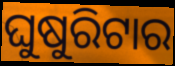
ଘୁଷୁରିଟାର